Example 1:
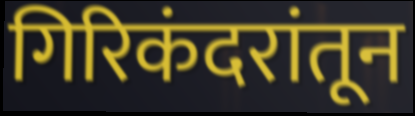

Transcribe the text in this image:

गिरिकंदरांतून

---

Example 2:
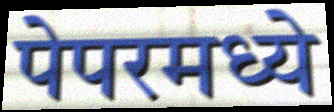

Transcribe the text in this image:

पेपरमध्ये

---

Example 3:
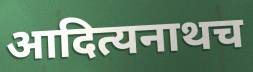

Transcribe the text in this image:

आदित्यनाथच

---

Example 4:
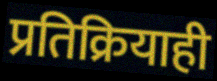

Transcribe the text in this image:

प्रतिक्रियाही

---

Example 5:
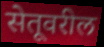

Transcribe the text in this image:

सेतूवरील